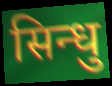
सिन्धु